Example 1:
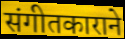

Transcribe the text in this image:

संगीतकाराने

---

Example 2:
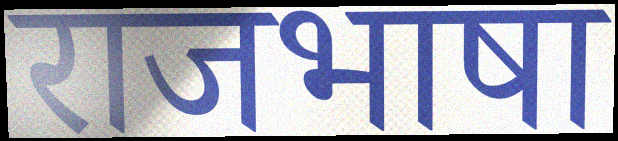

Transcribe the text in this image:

राजभाषा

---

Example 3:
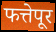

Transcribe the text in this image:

फत्तेपूर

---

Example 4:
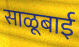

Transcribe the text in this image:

साळूबाई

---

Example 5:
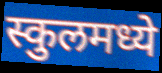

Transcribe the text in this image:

स्कुलमध्ये